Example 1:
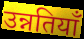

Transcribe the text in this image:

उन्नतियाँ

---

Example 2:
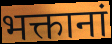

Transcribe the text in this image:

भक्तानां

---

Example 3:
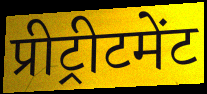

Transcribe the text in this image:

प्रीट्रीटमेंट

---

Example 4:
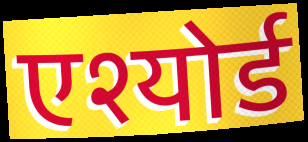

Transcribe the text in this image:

एश्योर्ड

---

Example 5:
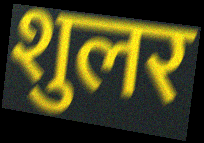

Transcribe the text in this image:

शुलर